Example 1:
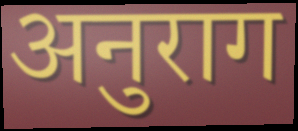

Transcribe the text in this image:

अनुराग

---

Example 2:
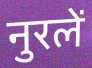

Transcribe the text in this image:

नुरलें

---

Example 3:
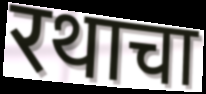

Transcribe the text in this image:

रथाचा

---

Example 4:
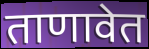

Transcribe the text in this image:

ताणावेत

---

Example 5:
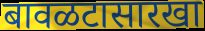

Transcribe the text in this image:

बावळटासारखा